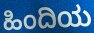
ಹಿಂದಿಯ